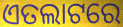
ଏତଲାଟରେ